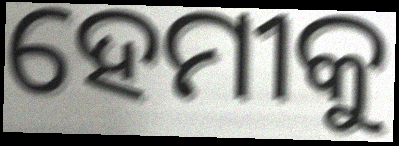
ହେମୀକୁ